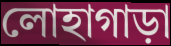
লোহাগাড়া